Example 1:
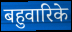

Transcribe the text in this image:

बहुवारिके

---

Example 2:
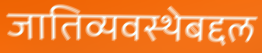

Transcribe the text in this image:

जातिव्यवस्थेबद्दल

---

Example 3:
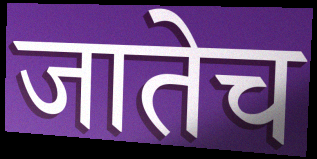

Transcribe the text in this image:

जातेच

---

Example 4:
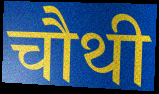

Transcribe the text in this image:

चौथी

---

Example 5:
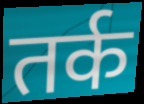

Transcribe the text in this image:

तर्क